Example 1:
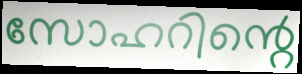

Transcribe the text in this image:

സോഹറിന്റെ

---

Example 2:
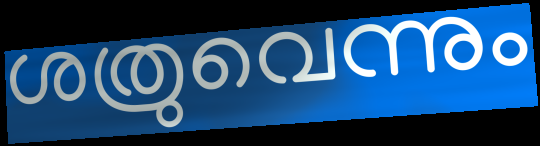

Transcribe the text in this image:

ശത്രുവെന്നും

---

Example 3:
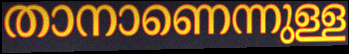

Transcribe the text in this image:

താനാണെന്നുള്ള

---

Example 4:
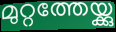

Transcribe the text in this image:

മുറ്റത്തേയ്ക്കു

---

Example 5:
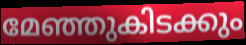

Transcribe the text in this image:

മേഞ്ഞുകിടക്കും